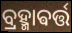
ବ୍ରହ୍ମାଵର୍ତ୍ତ